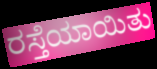
ರಸ್ತೆಯಾಯಿತು